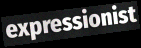
expressionist